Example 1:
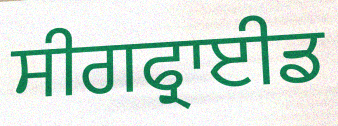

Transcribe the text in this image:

ਸੀਗਫ੍ਰਾਈਡ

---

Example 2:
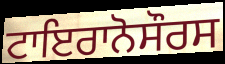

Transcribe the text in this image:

ਟਾਇਰਾਨੋਸੌਰਸ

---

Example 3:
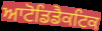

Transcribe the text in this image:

ਆਟੋਡਿਡੈਕਟਿਕ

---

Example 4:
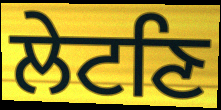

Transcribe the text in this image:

ਲੇਟਣਿ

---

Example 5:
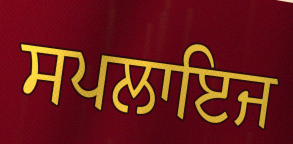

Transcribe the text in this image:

ਸਪਲਾਇਜ